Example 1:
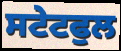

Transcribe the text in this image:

ਸਟੇਟਫੁਲ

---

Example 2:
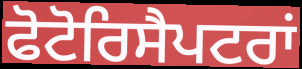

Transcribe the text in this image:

ਫੋਟੋਰਿਸੈਪਟਰਾਂ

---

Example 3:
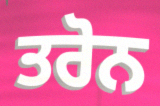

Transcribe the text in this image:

ਤਰੋਨ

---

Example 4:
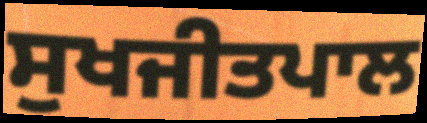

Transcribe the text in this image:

ਸੁਖਜੀਤਪਾਲ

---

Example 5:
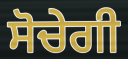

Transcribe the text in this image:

ਸੋਚੇਗੀ